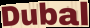
Dubal